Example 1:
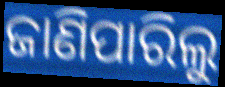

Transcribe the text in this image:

ଜାଣିପାରିଲୁ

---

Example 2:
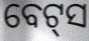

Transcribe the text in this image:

ବେଟ୍‌ସ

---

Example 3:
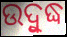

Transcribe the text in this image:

ଉଦ୍ୱୁଦ୍ଧ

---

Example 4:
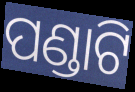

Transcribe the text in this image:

ପଣ୍ଡାଟି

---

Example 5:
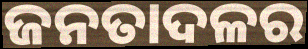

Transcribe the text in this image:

ଜନତାଦଳର